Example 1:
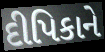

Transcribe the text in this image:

દીપિકાને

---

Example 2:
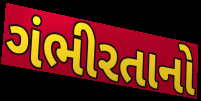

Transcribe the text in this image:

ગંભીરતાનો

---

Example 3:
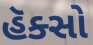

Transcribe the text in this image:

હૅક્સો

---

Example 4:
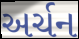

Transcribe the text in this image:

અર્ચન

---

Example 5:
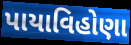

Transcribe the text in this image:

પાયાવિહોણા